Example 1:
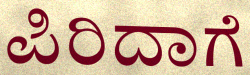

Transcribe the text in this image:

ಪಿರಿದಾಗೆ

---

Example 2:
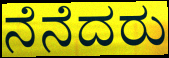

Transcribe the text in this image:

ನೆನೆದರು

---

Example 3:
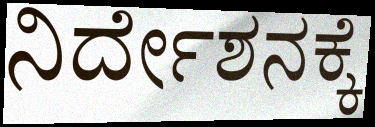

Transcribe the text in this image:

ನಿರ್ದೇಶನಕ್ಕೆ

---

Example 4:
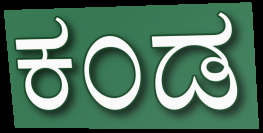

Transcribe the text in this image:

ಕಂಡ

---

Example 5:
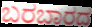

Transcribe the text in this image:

ಬರಬಾರದ